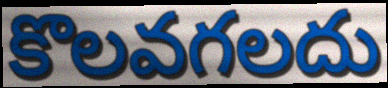
కొలవగలదు